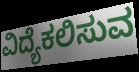
ವಿದ್ಯೆಕಲಿಸುವ